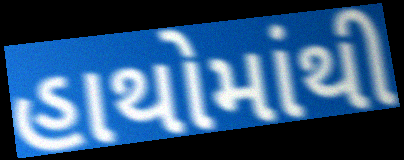
હાથોમાંથી